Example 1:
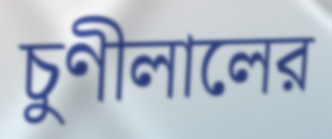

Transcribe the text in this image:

চুণীলালের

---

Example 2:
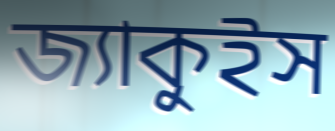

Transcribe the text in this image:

জ্যাকুইস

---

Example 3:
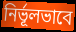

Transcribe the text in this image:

নির্ভূলভাবে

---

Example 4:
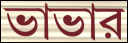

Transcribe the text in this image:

ভাভার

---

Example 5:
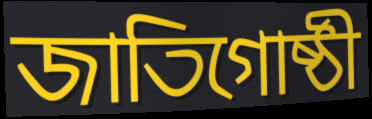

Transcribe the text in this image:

জাতিগোষ্ঠী